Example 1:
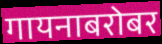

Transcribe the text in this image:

गायनाबरोबर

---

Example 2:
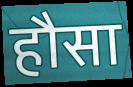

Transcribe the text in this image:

हौसा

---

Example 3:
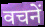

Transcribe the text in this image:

वचनें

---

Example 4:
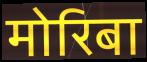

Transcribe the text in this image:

मोरिबा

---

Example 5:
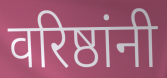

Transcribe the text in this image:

वरिष्ठांनी